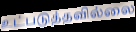
உட்படுத்தவில்லை